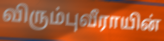
விரும்புவீராயின்